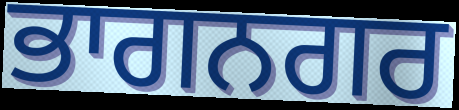
ਭਾਗਨਗਰ